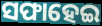
ସଫାହେଇ